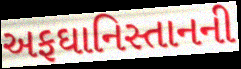
અફઘાનિસ્તાનની